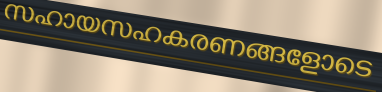
സഹായസഹകരണങ്ങളോടെ